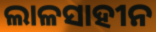
ଲାଳସାହୀନ